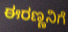
ಈರಣ್ಣನಿಗೆ